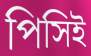
পিসিই